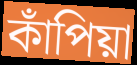
কাঁপিয়া